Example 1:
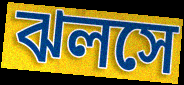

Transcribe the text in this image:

ঝলসে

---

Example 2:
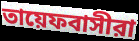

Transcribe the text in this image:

তায়েফবাসীরা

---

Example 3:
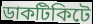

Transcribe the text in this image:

ডাকটিকিটে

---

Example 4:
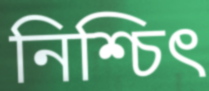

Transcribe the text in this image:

নিশ্চিৎ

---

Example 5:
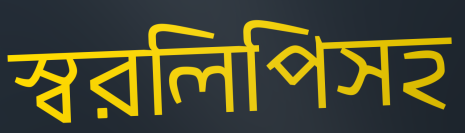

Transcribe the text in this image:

স্বরলিপিসহ